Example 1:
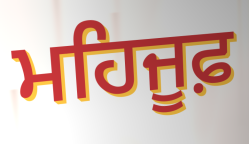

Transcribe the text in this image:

ਮਹਿਜੂਫ਼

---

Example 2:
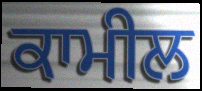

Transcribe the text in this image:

ਕਾਮੀਲ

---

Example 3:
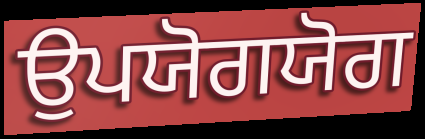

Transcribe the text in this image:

ਉਪਯੋਗਯੋਗ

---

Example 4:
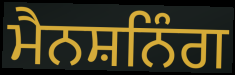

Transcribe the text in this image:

ਮੈਨਸ਼ਨਿੰਗ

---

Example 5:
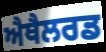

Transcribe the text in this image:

ਐਥੈਲਰਡ